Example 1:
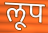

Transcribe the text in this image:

लूप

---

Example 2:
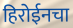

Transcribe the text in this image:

हिरोईनचा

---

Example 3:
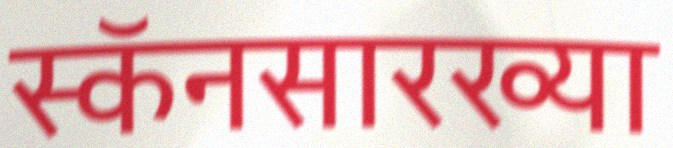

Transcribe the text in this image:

स्कॅनसारख्या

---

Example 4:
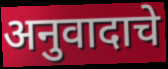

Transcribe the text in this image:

अनुवादाचे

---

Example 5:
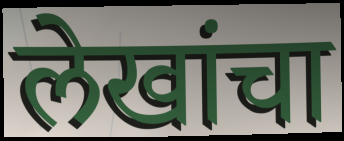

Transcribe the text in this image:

लेखांचा